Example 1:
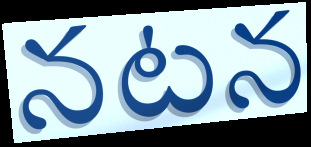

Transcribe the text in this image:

నటన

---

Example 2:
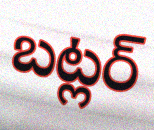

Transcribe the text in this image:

బట్లర్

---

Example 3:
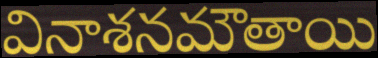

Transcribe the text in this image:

వినాశనమౌతాయి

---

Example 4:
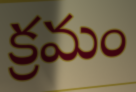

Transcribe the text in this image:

క్రమం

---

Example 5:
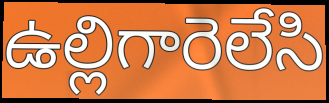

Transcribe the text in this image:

ఉల్లిగారెలేసి